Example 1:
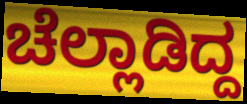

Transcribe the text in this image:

ಚೆಲ್ಲಾಡಿದ್ದ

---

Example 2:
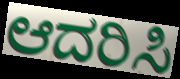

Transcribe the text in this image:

ಆದರಿಸಿ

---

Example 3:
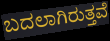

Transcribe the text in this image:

ಬದಲಾಗಿರುತ್ತವೆ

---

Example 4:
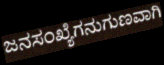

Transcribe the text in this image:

ಜನಸಂಖ್ಯೆಗನುಗುಣವಾಗಿ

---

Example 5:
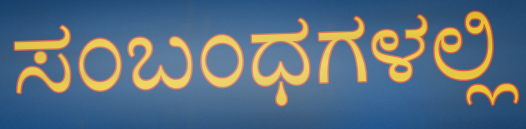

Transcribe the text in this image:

ಸಂಬಂಧಗಳಲ್ಲಿ